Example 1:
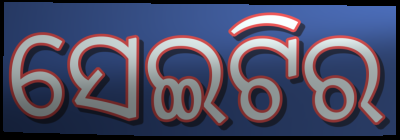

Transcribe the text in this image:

ସେଇଟିର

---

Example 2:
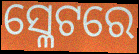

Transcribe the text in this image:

ସ୍ଳେଟରେ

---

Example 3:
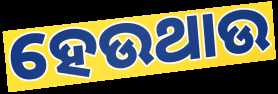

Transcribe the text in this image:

ହେଉଥାଉ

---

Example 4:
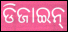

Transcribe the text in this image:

ଡିଜାଇନ୍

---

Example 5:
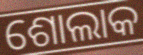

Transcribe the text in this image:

ଶୋଲାକ